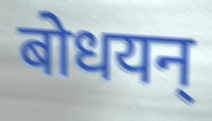
बोधयन्